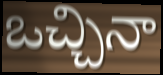
ఒచ్చినా